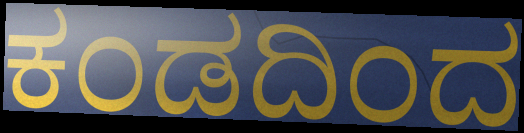
ಕಂಡದಿಂದ